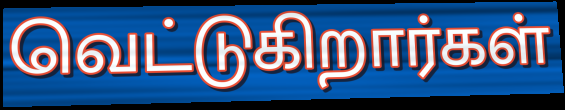
வெட்டுகிறார்கள்